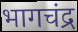
भागचंद्र